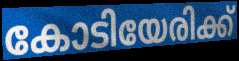
കോടിയേരിക്ക്